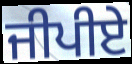
ਜੀਪੀਏ